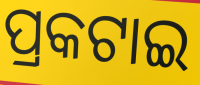
ପ୍ରକଟାଇ